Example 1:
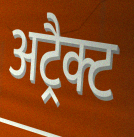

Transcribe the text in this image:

अट्रैक्ट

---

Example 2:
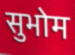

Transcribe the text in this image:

सुभोम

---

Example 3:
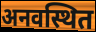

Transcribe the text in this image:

अनवस्थित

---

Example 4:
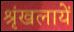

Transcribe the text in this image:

श्रृंखलायें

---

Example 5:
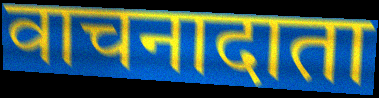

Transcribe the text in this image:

वाचनादाता